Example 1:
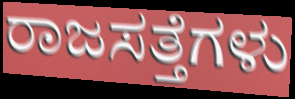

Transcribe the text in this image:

ರಾಜಸತ್ತೆಗಳು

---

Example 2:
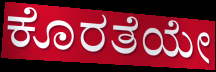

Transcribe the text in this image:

ಕೊರತೆಯೇ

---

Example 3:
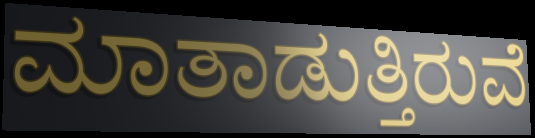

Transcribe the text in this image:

ಮಾತಾಡುತ್ತಿರುವೆ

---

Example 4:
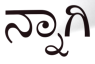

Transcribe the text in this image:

ನ್ನಾಗಿ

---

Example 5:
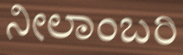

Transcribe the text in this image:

ನೀಲಾಂಬರಿ